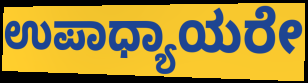
ಉಪಾಧ್ಯಾಯರೇ